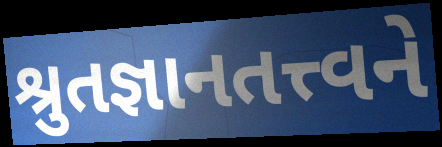
શ્રુતજ્ઞાનતત્ત્વને